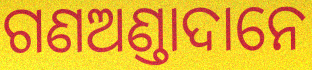
ଗଣଅଣ୍ଡାଦାନେ